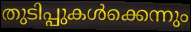
തുടിപ്പുകൾക്കെന്നും